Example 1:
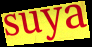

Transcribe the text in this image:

suya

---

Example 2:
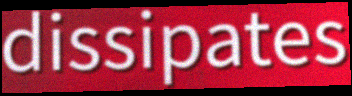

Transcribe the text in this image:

dissipates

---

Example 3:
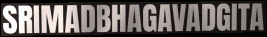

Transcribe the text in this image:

SRIMADBHAGAVADGITA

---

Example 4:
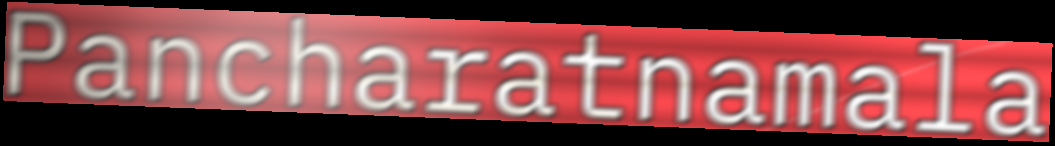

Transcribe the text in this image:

Pancharatnamala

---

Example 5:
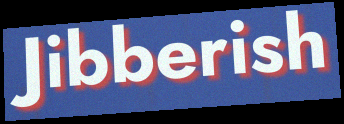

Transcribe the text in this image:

Jibberish